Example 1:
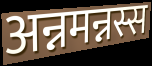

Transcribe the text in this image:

अन्नमन्नस्स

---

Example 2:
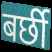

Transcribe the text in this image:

बर्छी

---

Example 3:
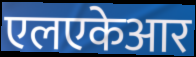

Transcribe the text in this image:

एलएकेआर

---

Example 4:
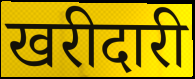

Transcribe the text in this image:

खरीदारी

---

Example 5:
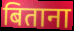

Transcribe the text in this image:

बिताना